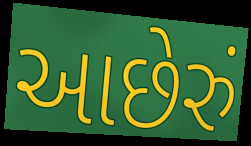
આછેરું